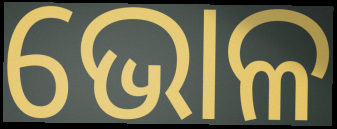
ଭୋଳ